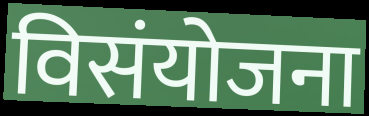
विसंयोजना